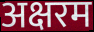
अक्षरम